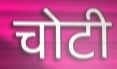
चोटी